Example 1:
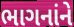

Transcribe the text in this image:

ભાગનાંને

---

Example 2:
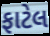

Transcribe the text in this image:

ફાટેલ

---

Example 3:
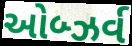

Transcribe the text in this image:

ઓબ્ઝર્વ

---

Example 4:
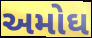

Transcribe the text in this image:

અમોઘ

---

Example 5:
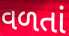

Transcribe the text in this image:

વળતાં